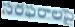
సరఫరాలపై